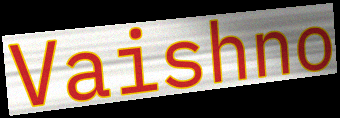
Vaishno